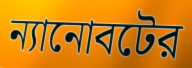
ন্যানোবটের